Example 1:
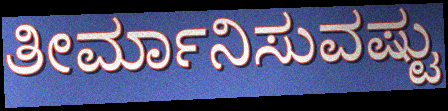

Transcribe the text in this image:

ತೀರ್ಮಾನಿಸುವಷ್ಟು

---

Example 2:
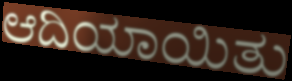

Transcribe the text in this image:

ಆದಿಯಾಯಿತು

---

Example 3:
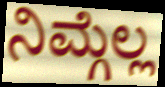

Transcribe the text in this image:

ನಿಮ್ಗೆಲ್ಲ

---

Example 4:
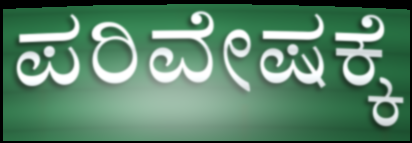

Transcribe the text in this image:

ಪರಿವೇಷಕ್ಕೆ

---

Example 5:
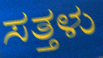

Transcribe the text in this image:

ಸತ್ತಳು